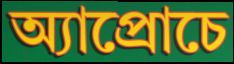
অ্যাপ্রোচে